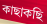
কাছাকছি